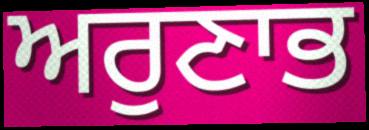
ਅਰੁਣਾਭ